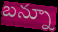
బన్నూ